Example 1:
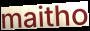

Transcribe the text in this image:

maitho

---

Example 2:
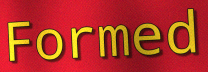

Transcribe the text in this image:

Formed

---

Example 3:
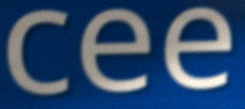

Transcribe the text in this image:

cee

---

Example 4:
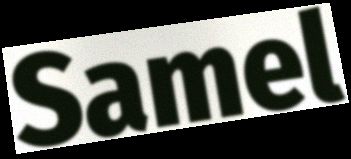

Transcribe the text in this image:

Samel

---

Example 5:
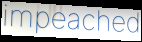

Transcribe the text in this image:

impeached